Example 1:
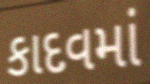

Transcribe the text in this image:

કાદવમાં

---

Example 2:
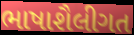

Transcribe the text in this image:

ભાષાશૈલીગત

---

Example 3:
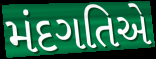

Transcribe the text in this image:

મંદગતિએ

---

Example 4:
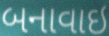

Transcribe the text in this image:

બનાવાઇ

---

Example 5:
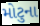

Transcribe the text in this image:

મોટુના